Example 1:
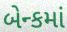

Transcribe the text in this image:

બેન્કમાં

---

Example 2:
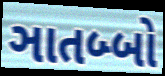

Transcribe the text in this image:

ઞાતબ્બો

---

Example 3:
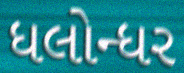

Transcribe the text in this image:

ધલોન્ધર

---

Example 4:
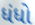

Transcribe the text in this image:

ધંધો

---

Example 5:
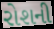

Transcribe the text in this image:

રોશની